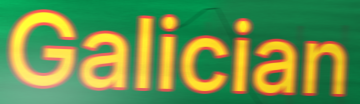
Galician